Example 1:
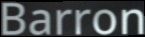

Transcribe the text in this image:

Barron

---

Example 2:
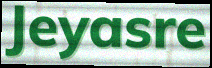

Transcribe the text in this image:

Jeyasre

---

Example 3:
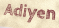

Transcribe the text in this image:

Adiyen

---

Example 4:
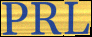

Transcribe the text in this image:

PRL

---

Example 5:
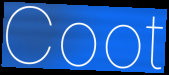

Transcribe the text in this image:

Coot